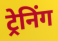
ट्रेनिंग